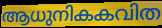
ആധുനികകവിത